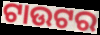
ଟାଉଟର